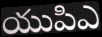
యుపిఎ